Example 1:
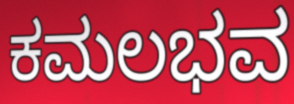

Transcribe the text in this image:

ಕಮಲಭವ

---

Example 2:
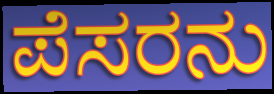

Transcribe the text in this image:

ಪೆಸರನು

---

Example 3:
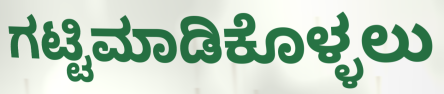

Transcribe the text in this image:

ಗಟ್ಟಿಮಾಡಿಕೊಳ್ಳಲು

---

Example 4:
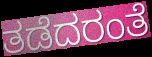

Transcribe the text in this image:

ತಡೆದರಂತೆ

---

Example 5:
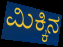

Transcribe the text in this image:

ಮಿಕ್ಕಿನ